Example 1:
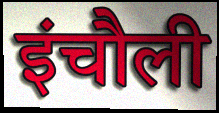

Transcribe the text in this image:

इंचौली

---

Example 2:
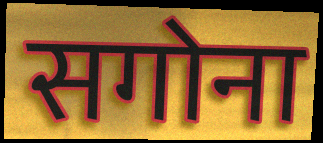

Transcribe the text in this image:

सगोना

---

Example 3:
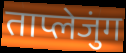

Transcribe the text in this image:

ताप्लेजुंग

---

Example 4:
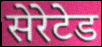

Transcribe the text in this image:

सेरेटेड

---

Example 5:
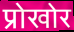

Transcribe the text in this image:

प्रोखोर